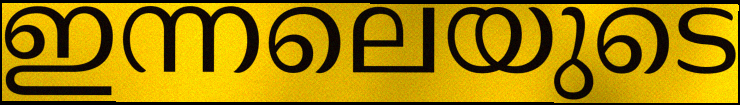
ഇന്നലെയുടെ